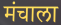
मंचाला